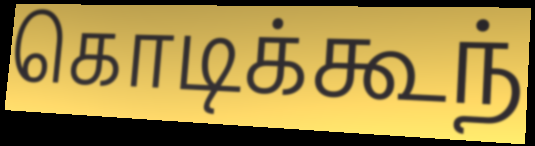
கொடிக்கூந்